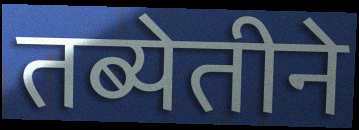
तब्येतीने